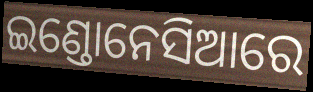
ଇଣ୍ଡୋନେସିଆରେ